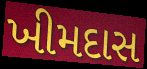
ખીમદાસ